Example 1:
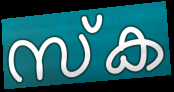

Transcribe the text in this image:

സ്ക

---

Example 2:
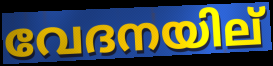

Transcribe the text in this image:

വേദനയില്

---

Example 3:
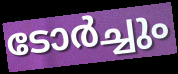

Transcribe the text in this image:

ടോർച്ചും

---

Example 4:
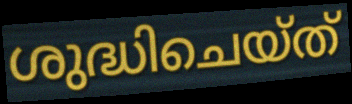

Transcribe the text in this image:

ശുദ്ധിചെയ്ത്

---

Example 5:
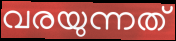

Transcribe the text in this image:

വരയുന്നത്